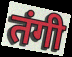
तंगी